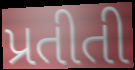
પ્રતીતી